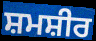
ਸ਼ਮਸ਼ੀਰ